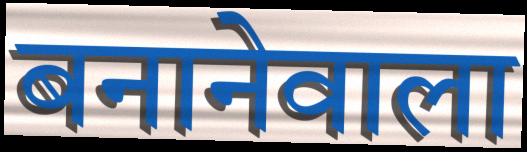
बनानेवाला